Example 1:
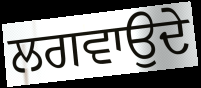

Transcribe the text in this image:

ਲਗਵਾਉਦੇ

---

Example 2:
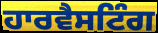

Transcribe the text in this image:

ਹਾਰਵੈਸਟਿੰਗ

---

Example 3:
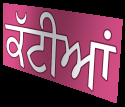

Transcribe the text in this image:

ਕੱਟੀਆਂ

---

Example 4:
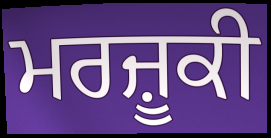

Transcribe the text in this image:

ਮਰਜ਼ੂਕੀ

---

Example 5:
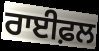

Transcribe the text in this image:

ਰਾਈਫ਼ਲ